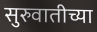
सुरुवातीच्या